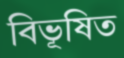
বিভূষিত